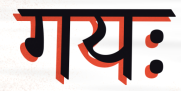
गयः